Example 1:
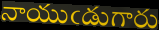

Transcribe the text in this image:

నాయుఁడుగారు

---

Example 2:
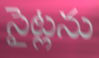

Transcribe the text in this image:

సైట్లను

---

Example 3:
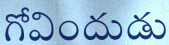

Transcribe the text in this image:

గోవిందుడు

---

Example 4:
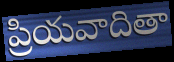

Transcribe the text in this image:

ప్రియవాదితా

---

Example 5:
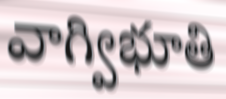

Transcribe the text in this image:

వాగ్విభూతి